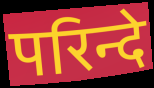
परिन्दे